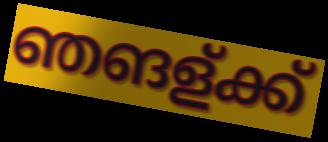
ഞങള്ക്ക്